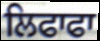
ਲਿਫਾਫਾ